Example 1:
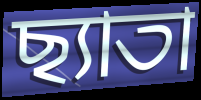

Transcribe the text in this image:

ছ্যাতা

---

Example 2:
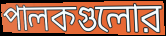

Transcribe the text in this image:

পালকগুলোর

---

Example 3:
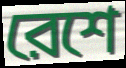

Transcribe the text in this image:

রেশে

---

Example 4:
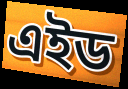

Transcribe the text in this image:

এইড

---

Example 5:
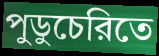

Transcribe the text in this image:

পুডুচেরিতে